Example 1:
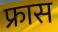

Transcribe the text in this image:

फ्रास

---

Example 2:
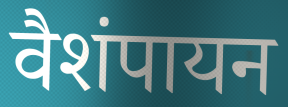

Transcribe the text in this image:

वैशंपायन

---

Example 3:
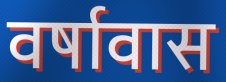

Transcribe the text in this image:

वर्षावास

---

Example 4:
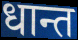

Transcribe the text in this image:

धान्त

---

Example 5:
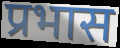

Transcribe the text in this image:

प्रभास